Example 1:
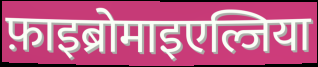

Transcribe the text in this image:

फ़ाइब्रोमाइएल्जिया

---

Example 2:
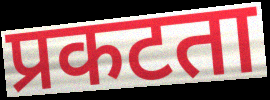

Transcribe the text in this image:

प्रकटता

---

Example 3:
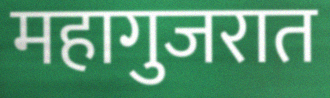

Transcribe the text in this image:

महागुजरात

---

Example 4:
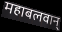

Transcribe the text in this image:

महाबलवान्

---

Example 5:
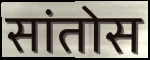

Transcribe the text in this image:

सांतोस